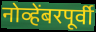
नोव्हेंबरपूर्वी